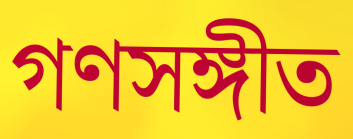
গণসঙ্গীত